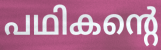
പഥികന്റെ